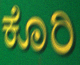
ಕೊರಿ